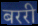
बररी